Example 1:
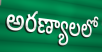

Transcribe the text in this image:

అరణ్యాలలో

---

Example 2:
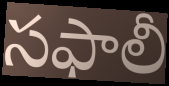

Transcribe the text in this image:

సఫాలీ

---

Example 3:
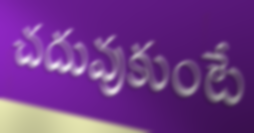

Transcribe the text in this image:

చదువుకుంటే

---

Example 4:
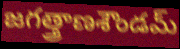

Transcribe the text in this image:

జగత్త్రాణశౌండమ్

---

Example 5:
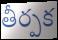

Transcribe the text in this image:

తీర్పక